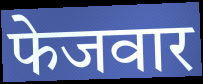
फेजवार